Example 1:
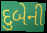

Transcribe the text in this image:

દુબેની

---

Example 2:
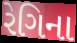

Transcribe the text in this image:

રેગિના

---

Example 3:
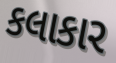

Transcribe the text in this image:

કલાકાર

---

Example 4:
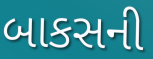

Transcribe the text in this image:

બાકસની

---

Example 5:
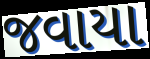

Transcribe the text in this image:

જવાયા